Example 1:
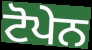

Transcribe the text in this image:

ਟੋਪੇਨ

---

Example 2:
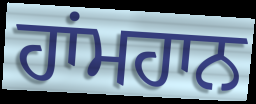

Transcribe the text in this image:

ਹਾਂਮਹਾਨ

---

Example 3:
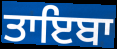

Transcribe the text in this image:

ਤਾਇਬਾ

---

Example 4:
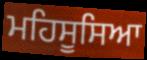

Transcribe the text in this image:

ਮਹਿਸੂਸਿਆ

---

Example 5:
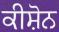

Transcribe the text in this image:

ਕੀਸ਼ੋਨ